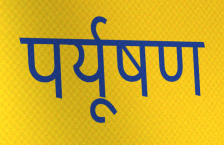
पर्यूषण